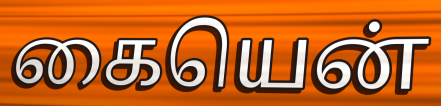
கையென்